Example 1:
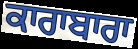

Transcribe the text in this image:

ਕਾਰਾਬਾਰਾ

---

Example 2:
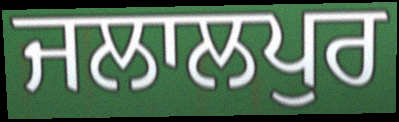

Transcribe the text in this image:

ਜਲਾਲਪੁਰ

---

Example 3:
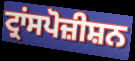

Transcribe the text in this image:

ਟ੍ਰਾਂਸਪੋਜ਼ੀਸ਼ਨ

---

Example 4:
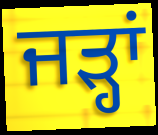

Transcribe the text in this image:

ਜੜ੍ਹਾਂ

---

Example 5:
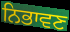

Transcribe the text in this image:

ਨਿਭਾਵਣ